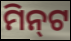
ମିନ୍‌ଟ